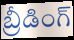
బ్రీడింగ్